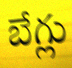
బేగ్లు